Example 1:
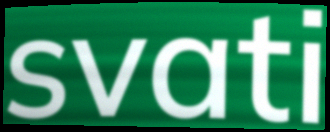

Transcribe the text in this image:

svati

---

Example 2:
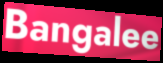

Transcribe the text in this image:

Bangalee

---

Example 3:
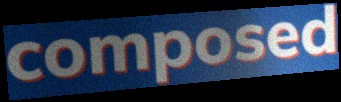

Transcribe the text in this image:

composed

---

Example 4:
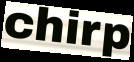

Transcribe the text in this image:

chirp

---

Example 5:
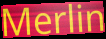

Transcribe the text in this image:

Merlin